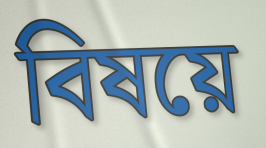
বিষয়ে